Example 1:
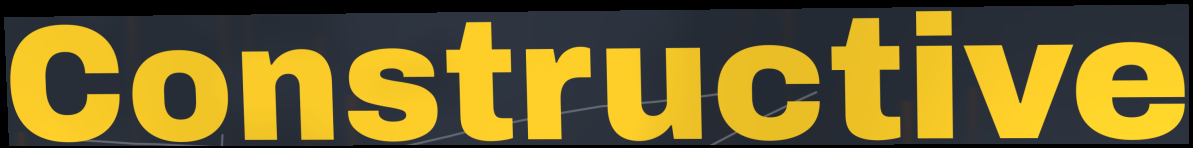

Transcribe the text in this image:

Constructive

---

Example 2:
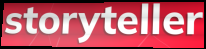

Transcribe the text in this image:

storyteller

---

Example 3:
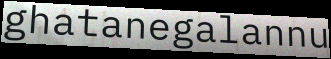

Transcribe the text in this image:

ghatanegalannu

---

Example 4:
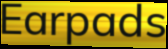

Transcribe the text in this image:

Earpads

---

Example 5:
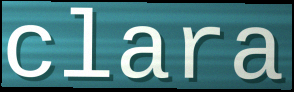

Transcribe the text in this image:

clara